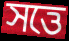
সত্তে